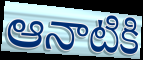
ఆనాటికి